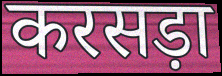
करसड़ा